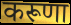
करूणा